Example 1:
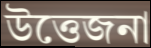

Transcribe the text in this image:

উত্তেজনা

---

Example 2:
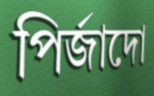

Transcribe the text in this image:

পিৰ্জাদো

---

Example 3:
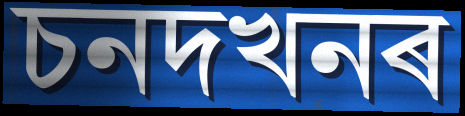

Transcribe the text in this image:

চনদখনৰ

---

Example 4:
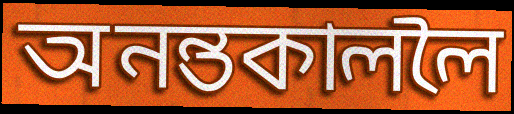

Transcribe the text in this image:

অনন্তকাললৈ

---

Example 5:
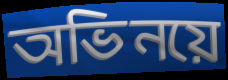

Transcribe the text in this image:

অভিনয়ে